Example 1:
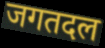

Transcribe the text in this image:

जगतदल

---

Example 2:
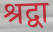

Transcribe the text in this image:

श्रद्वा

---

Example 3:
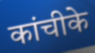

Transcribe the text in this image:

कांचीके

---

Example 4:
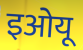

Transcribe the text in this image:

इओयू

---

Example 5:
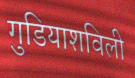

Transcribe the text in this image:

गुडियाशविली